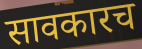
सावकारच